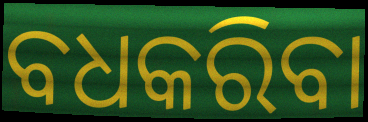
ବଧକରିବା